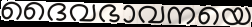
ദൈവഭാവനയെ